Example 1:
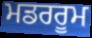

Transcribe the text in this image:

ਮਡਰਰੂਮ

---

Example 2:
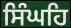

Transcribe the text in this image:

ਸਿੰਘਹਿ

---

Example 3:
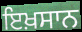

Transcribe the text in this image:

ਇਖ਼ਸਾਨ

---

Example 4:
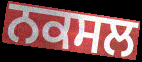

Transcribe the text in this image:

ਨਕਸਲ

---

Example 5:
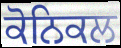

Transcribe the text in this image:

ਕੋਨਿਕਲ